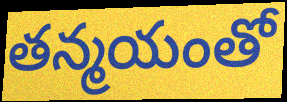
తన్మయంతో